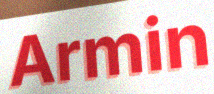
Armin